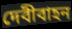
দেবীবাহন